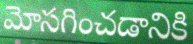
మోసగించడానికి